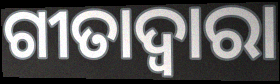
ଗୀତାଦ୍ଵାରା